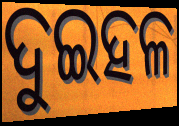
ଦୁଇହଳ